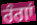
ਰੰਗਾਂ